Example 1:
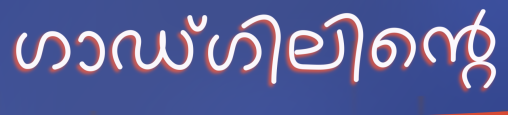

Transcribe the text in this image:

ഗാഡ്ഗിലിന്റെ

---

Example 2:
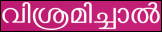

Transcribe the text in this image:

വിശ്രമിച്ചാൽ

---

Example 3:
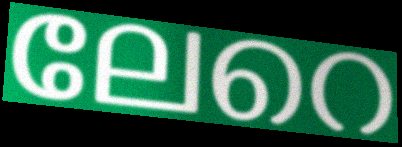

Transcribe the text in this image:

ലേറെ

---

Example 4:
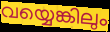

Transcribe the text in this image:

വയ്യെങ്കിലും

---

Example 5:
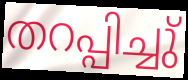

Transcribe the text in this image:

തറപ്പിച്ചു്